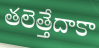
తలెత్తేదాకా